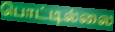
பொட்டில்லை